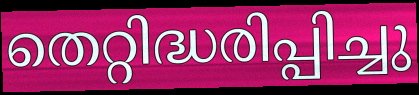
തെറ്റിദ്ധരിപ്പിച്ചു